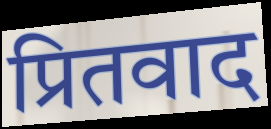
प्रितवाद